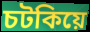
চটকিয়ে